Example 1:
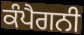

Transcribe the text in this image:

ਕੰਪੈਗਨੀ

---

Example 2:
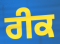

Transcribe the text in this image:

ਰੀਕ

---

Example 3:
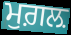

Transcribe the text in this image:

ਮੁਗ਼ਲ਼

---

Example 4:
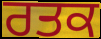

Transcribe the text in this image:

ਰਤਕ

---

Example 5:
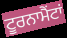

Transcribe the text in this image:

ਟੂਰਨਾਮੈਂਟਾਂ